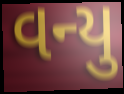
વન્યુ